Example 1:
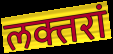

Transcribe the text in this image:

लक्तरां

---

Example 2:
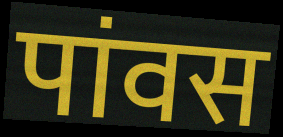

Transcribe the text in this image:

पांवस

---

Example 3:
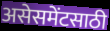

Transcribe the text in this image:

असेसमेंटसाठी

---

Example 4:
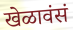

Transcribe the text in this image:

खेळावंसं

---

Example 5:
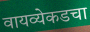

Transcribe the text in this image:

वायव्येकडचा